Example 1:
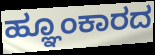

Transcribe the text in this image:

ಹ್ಞೂಂಕಾರದ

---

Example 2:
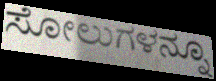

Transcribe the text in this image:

ಸೋಲುಗಳನ್ನೂ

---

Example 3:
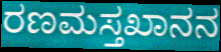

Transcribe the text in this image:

ರಣಮಸ್ತಖಾನನ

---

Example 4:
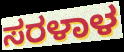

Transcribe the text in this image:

ಸರಳಾಳ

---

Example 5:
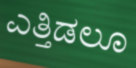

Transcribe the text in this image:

ಎತ್ತಿಡಲೂ